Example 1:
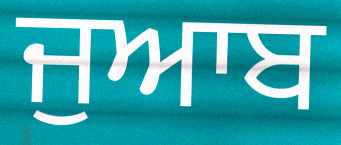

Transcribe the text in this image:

ਜੁਆਬ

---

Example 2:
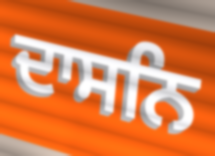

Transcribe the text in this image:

ਦਾਸਨਿ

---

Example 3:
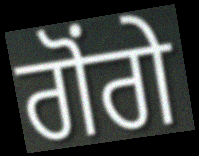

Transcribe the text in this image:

ਗੋਂਗੇ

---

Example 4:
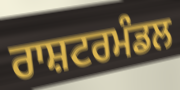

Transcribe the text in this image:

ਰਾਸ਼ਟਰਮੰਡਲ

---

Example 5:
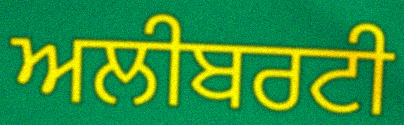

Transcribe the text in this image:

ਅਲੀਬਰਟੀ